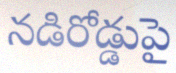
నడిరోడ్డుపై